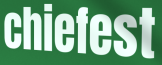
chiefest